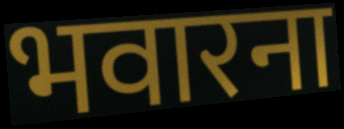
भवारना